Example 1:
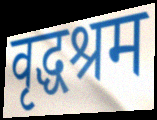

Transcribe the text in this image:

वृद्धश्रम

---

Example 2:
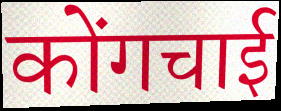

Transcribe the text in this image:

कोंगचाई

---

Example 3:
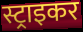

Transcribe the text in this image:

स्ट्राइकर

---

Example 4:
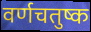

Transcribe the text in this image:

वर्णचतुष्क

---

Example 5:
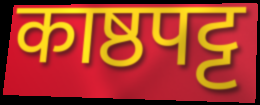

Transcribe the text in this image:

काष्ठपट्ट